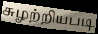
சுழற்றியபடி